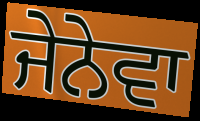
ਜੇਨੇਵਾ